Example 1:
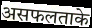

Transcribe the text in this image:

असफलताके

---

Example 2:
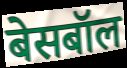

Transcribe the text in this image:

बेसबॉल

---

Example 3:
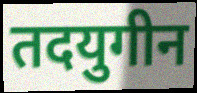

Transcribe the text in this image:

तदयुगीन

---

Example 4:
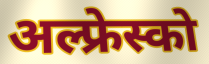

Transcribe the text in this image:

अल्फ्रेस्को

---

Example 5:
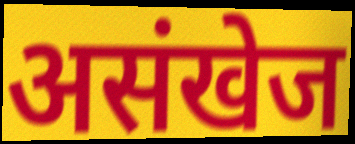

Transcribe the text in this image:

असंखेज